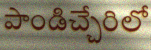
పాండిచ్చేరిలో